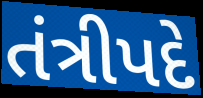
તંત્રીપદે